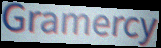
Gramercy